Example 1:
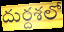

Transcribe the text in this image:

దుర్దశలో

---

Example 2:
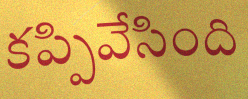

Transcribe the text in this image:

కప్పివేసింది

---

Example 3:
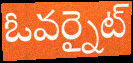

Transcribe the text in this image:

ఓవర్నైట్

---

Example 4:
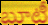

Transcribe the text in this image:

బూటీ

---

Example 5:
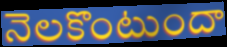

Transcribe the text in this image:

నెలకొంటుందా